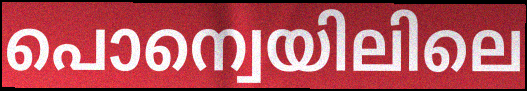
പൊന്വെയിലിലെ